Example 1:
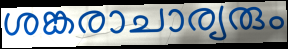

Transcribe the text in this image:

ശങ്കരാചാര്യരും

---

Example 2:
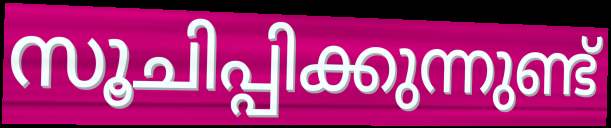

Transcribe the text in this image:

സൂചിപ്പിക്കുന്നുണ്ട്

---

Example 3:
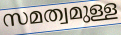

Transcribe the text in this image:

സമത്വമുള്ള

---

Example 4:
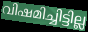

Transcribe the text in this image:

വിഷമിച്ചിട്ടില്ല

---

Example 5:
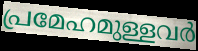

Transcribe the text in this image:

പ്രമേഹമുള്ളവർ